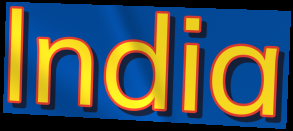
lndia